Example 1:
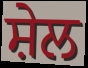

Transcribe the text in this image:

ਸ਼ੇਲ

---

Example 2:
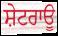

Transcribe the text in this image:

ਸ਼ੇਟਰਾਊ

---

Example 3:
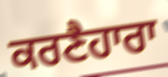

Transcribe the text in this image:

ਕਰਣੈਹਾਰਾ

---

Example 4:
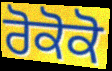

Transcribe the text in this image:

ਰੋਕੋਕੋ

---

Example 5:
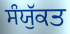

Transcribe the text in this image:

ਸੰਯੁੱਕਤ